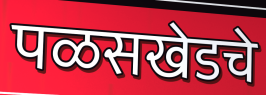
पळसखेडचे